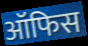
ऑफिस